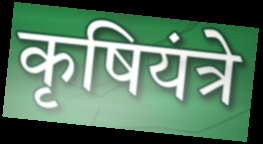
कृषियंत्रे